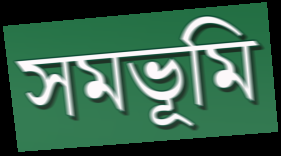
সমভূমি